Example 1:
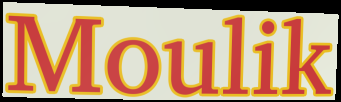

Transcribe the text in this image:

Moulik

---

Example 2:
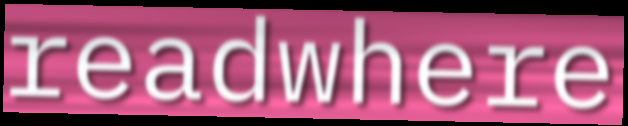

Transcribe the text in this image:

readwhere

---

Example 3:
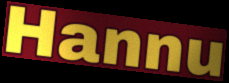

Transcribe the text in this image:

Hannu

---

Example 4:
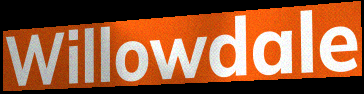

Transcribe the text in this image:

Willowdale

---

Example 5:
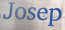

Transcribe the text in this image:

Josep